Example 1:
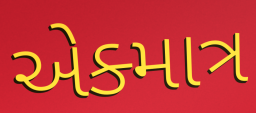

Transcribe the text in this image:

એક્માત્ર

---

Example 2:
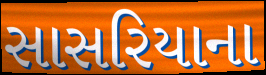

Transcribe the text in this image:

સાસરિયાના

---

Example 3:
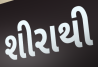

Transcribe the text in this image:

શીરાથી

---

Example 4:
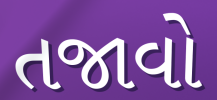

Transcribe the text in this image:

તજાવો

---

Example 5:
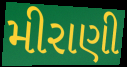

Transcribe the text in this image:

મીરાણી